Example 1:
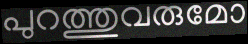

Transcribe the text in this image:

പുറത്തുവരുമോ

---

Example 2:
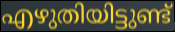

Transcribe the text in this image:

എഴുതിയിട്ടുണ്ട്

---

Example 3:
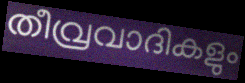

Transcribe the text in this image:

തീവ്രവാദികളും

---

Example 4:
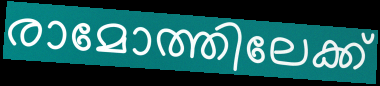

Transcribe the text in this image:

രാമോത്തിലേക്ക്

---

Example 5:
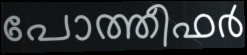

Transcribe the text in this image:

പോത്തീഫർ